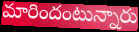
మారిందంటున్నారు